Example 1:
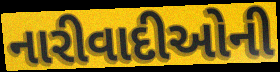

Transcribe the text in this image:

નારીવાદીઓની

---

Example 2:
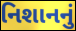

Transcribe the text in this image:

નિશાનનું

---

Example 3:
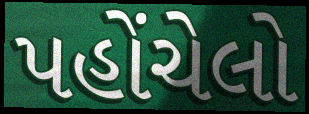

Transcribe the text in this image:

પહોંચેલો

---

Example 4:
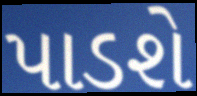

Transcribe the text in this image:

પાડશે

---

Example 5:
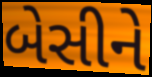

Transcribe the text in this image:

બેસીને